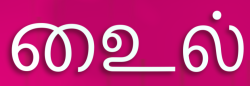
உைல்